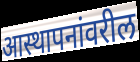
आस्थापनांवरील